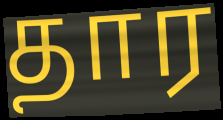
தார